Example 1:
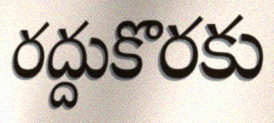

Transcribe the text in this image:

రద్దుకొరకు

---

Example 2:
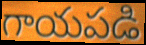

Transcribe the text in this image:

గాయపడి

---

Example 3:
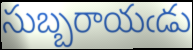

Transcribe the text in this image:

సుబ్బరాయఁడు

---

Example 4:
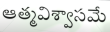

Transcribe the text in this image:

ఆత్మవిశ్వాసమే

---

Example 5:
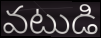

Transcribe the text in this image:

వటుడి